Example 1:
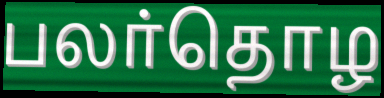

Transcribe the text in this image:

பலர்தொழ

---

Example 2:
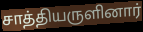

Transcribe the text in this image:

சாத்தியருளினார்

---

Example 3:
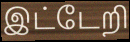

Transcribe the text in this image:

இட்டேறி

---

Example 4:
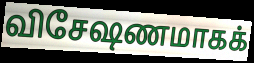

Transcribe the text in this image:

விசேஷணமாகக்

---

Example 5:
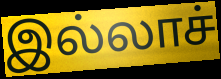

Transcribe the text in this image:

இல்லாச்